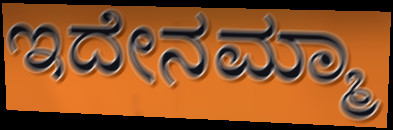
ಇದೇನಮ್ಮಾ